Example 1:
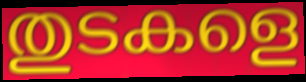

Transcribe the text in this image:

തുടകളെ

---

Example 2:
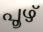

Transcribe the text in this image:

പൂഴ്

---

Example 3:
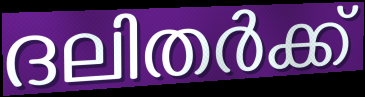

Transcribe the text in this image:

ദലിതർക്ക്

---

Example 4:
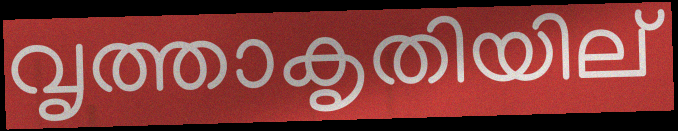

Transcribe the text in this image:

വൃത്താകൃതിയില്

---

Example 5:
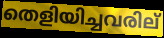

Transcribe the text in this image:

തെളിയിച്ചവരില്